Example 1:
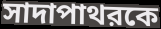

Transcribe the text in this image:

সাদাপাথরকে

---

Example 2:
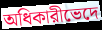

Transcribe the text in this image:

অধিকারীভেদে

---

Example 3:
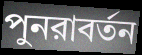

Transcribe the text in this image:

পুনরাবর্তন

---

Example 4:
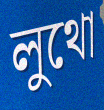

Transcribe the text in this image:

লুথো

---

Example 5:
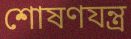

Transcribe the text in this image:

শোষণযন্ত্র